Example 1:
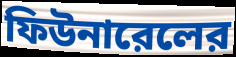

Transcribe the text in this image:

ফিউনারেলের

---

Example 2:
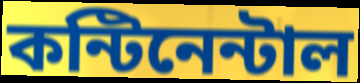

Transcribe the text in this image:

কন্টিনেন্টাল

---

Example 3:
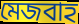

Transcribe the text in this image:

মেজবাহ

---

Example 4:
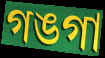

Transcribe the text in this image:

গঙগা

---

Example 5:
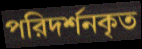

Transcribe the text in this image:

পরিদর্শনকৃত